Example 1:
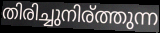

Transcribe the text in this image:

തിരിച്ചുനിര്ത്തുന്ന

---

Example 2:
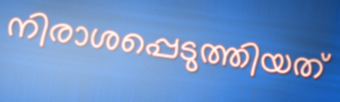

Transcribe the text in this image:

നിരാശപ്പെടുത്തിയത്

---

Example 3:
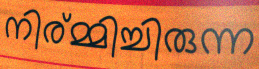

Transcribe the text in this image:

നിര്മ്മിച്ചിരുന്ന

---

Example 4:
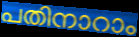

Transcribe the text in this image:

പതിനാറാം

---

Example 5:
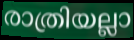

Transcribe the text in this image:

രാത്രിയല്ലാ